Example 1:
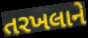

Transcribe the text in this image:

તરખલાને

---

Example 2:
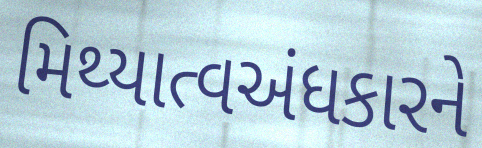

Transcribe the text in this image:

મિથ્યાત્વઅંધકારને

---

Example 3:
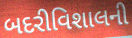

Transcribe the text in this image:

બદરીવિશાલની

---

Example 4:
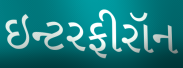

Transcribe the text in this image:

ઇન્ટરફીરૉન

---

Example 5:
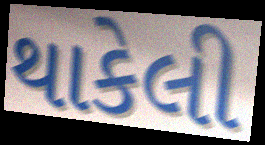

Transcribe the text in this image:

થાકેલી